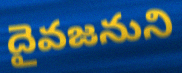
దైవజనుని